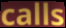
calls